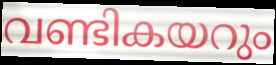
വണ്ടികയറും